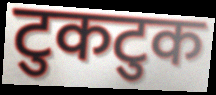
टुकटुक